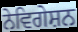
ਨੇਵਿਗੇਸ਼ਨ